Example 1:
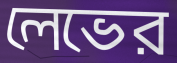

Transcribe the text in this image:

লেভের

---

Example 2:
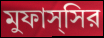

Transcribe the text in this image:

মুফাস্সির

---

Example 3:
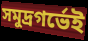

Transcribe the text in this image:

সমুদ্রগর্ভেই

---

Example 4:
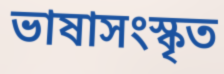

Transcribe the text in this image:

ভাষাসংস্কৃত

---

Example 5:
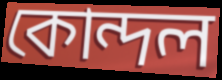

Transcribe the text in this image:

কোন্দল